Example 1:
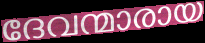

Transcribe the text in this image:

ദേവന്മാരായ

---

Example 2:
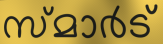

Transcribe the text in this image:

സ്മാർട്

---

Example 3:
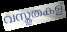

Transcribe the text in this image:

വസ്തുതകള്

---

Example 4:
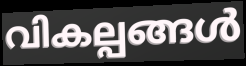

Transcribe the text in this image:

വികല്പങ്ങൾ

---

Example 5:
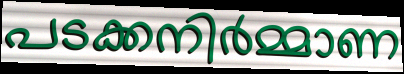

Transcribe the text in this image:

പടക്കനിർമ്മാണ